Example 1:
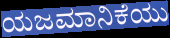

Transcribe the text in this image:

ಯಜಮಾನಿಕೆಯು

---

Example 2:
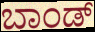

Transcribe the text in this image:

ಬಾಂಡ್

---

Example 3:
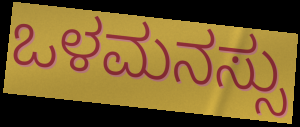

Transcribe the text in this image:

ಒಳಮನಸ್ಸು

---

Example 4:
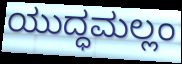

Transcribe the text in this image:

ಯುದ್ಧಮಲ್ಲಂ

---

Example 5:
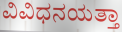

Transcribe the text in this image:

ವಿವಿಧನಯತ್ತಾ